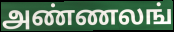
அண்ணலங்